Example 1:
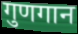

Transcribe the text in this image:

गुणगान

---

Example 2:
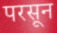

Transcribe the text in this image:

परसून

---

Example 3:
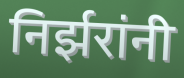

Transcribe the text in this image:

निर्झरांनी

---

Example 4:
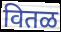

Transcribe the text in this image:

वितळ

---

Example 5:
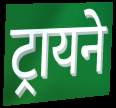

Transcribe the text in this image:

ट्रायने